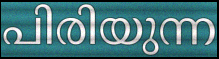
പിരിയുന്ന